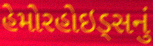
હેમોરહોઇડ્સનું